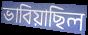
ভাবিয়াছিল